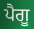
ਪੈਗੂ